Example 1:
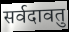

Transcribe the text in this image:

सर्वदावतु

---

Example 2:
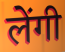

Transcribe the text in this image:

लेंगी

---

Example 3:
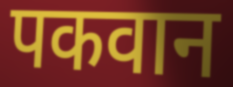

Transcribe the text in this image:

पकवान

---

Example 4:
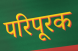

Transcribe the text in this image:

परिपूरक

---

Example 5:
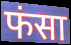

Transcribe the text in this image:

फंसा